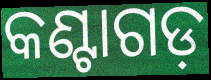
କଣ୍ଟାଗଡ଼